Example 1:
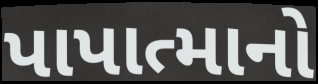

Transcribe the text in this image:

પાપાત્માનો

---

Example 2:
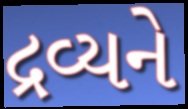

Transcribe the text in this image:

દ્રવ્યને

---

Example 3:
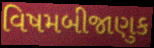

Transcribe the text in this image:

વિષમબીજાણુક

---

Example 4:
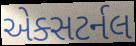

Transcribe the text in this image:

એક્સટર્નલ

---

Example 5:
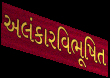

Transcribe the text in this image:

અલંકારવિભૂષિત